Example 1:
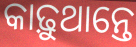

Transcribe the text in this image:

କାଢ଼ୁଥାନ୍ତେ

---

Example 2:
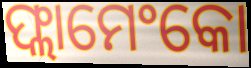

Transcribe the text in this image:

ଫ୍ଲାମେଂକୋ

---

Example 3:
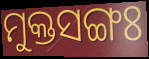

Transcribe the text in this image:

ମୁକ୍ତସଙ୍ଗଃ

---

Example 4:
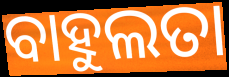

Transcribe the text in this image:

ବାହୁଲତା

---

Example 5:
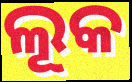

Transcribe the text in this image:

ଲୂକ